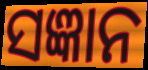
ସଜ୍ଞାନ